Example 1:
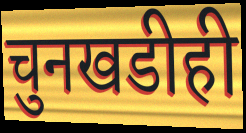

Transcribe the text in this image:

चुनखडीही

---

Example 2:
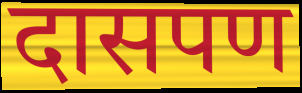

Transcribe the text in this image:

दासपण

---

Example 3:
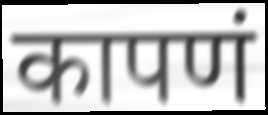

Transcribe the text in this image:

कापणं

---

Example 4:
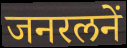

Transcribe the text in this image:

जनरलनें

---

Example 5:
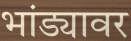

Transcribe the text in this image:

भांड्यावर